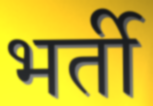
भर्ती